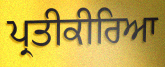
ਪ੍ਰਤੀਕੀਰਿਆ